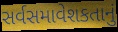
સર્વસમાવેશકતાનું